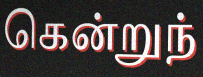
கென்றுந்